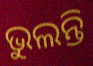
ଭୁଲନ୍ତି